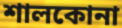
শালকোনা